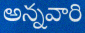
అన్నవారి